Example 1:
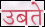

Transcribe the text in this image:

उबते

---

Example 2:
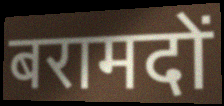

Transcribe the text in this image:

बरामदों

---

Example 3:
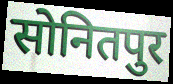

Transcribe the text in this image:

सोनितपुर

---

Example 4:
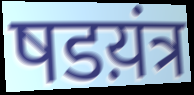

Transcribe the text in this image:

षडय़ंत्र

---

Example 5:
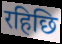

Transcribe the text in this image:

रहिछि